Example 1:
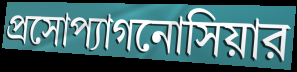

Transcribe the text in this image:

প্রসোপ্যাগনোসিয়ার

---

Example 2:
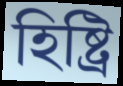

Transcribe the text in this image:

হিষ্ট্রি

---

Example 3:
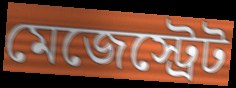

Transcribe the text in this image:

মেজেস্ট্রেট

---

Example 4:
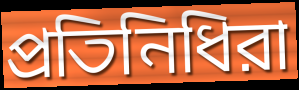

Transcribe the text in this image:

প্রতিনিধিরা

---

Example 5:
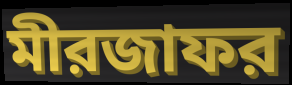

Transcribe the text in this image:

মীরজাফর